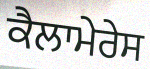
ਕੈਲਾਮੇਰੇਸ